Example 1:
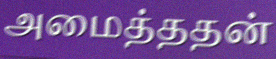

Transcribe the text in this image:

அமைத்ததன்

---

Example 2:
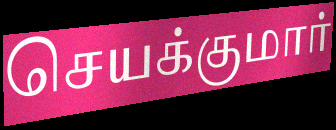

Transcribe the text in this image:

செயக்குமார்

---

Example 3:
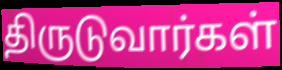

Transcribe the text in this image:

திருடுவார்கள்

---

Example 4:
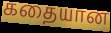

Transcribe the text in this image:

கதையான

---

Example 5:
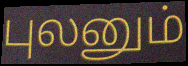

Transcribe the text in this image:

புலனும்